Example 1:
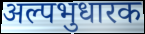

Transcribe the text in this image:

अल्पभुधारक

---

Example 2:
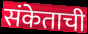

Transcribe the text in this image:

संकेताची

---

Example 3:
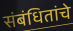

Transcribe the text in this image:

संबंधितांचे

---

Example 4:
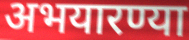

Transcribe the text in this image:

अभयारण्या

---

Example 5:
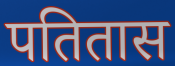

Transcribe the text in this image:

पतितास